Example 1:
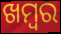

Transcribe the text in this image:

ଖମ୍ୱର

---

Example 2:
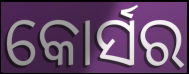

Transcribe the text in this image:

କୋର୍ସର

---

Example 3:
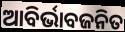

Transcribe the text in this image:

ଆବିର୍ଭାବଜନିତ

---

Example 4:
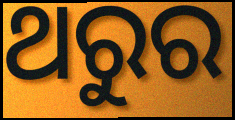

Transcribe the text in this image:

ଥରୁର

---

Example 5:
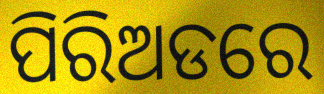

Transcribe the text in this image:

ପିରିଅଡରେ